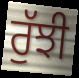
ਰੁੱਝੀ